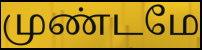
முண்டமே